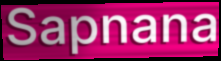
Sapnana